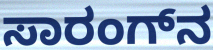
ಸಾರಂಗ್‌ನ